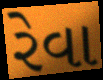
રેવા